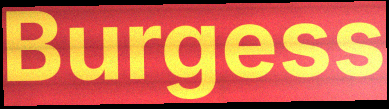
Burgess